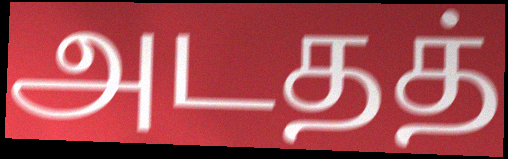
அடதத்